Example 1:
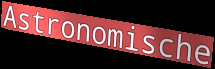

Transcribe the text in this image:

Astronomische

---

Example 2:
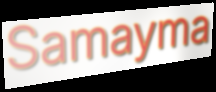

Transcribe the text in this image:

Samayma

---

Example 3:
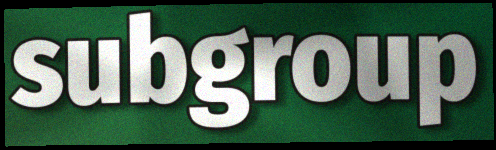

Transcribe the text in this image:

subgroup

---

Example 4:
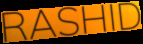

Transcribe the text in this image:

RASHID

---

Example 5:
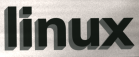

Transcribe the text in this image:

linux